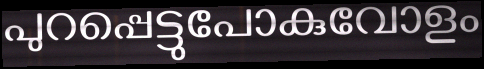
പുറപ്പെട്ടുപോകുവോളം